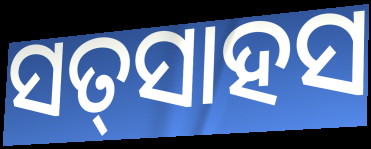
ସତ୍‌ସାହସ